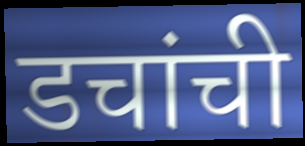
डचांची